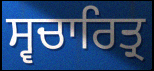
ਸ੍ਵਚਾਰਿਤ੍ਰ